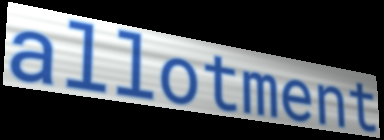
allotment